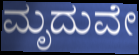
ಮೃದುವೇ